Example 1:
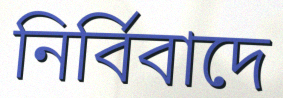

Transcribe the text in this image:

নিৰ্বিবাদে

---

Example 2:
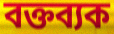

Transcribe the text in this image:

বক্তব্যক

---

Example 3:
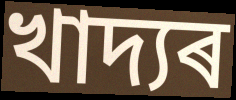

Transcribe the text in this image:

খাদ্যৰ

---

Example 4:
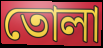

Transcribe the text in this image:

তোলা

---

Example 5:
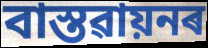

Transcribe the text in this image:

বাস্তৱায়নৰ